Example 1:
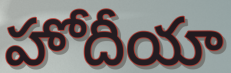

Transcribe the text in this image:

హోదీయా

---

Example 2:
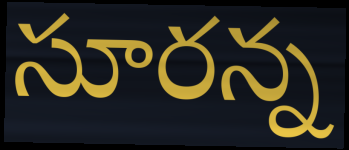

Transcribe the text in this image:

సూరన్న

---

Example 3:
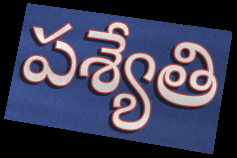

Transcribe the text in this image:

పశ్యేతి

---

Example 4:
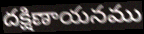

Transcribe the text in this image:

దక్షిణాయనము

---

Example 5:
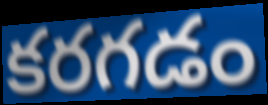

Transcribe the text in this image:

కరగడం